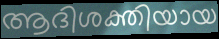
ആദിശക്തിയായ